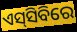
ଏସ୍‌ସିବିରେ